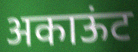
अकाऊंट